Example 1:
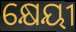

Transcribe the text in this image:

କ୍ଷେୟୀ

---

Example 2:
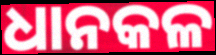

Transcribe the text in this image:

ଧାନକଳ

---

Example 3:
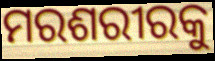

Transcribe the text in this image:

ମରଶରୀରକୁ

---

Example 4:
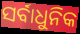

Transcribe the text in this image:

ସର୍ବାଧୁନିକ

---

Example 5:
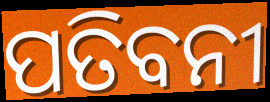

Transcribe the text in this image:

ପତିବନୀ